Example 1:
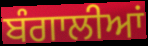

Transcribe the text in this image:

ਬੰਗਾਲੀਆਂ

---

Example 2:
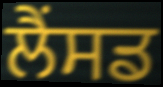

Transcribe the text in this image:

ਲੈਂਸਡ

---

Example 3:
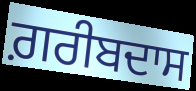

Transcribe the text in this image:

ਗ਼ਰੀਬਦਾਸ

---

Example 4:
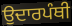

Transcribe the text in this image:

ਉਦਾਰਪੰਥੀ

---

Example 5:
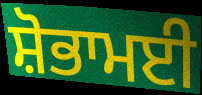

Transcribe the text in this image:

ਸ਼ੋਭਾਮਈ